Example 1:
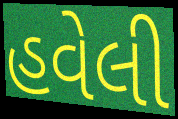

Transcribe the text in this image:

હવેલી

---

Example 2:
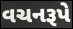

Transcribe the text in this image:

વચનરૂપે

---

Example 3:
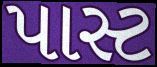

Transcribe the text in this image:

પાસ્ટ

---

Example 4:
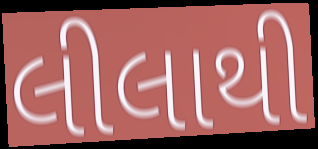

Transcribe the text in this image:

લીલાથી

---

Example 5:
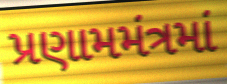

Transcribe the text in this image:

પ્રણામમંત્રમાં